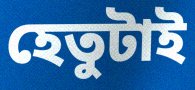
হেতুটাই